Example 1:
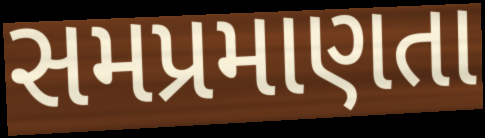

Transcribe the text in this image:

સમપ્રમાણતા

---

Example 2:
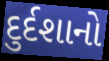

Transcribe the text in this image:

દુર્દશાનો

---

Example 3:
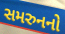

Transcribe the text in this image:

સમરુનનો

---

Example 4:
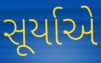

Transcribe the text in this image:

સૂર્યાએ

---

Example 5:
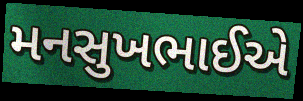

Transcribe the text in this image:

મનસુખભાઈએ